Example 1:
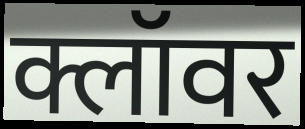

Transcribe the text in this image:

क्लॉवर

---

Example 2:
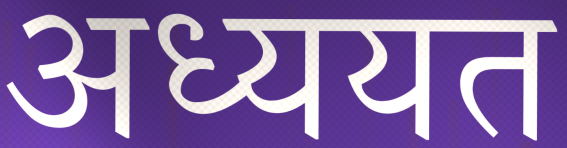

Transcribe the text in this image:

अध्ययत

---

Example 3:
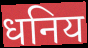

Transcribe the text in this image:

धनिय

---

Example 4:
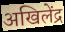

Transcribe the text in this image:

अखिलेंद्र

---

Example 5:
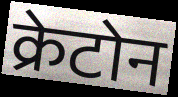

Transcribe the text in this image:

क्रेटोन